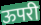
ऊपरी